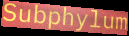
Subphylum